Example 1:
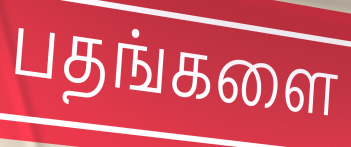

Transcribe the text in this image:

பதங்களை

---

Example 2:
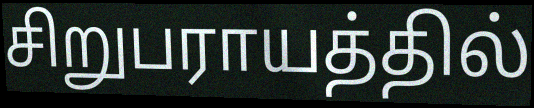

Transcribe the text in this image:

சிறுபராயத்தில்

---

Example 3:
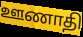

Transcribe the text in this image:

ஊணாதி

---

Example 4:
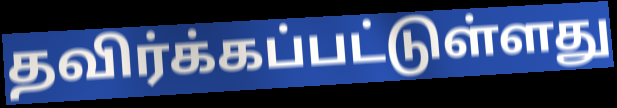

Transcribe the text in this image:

தவிர்க்கப்பட்டுள்ளது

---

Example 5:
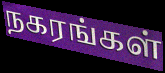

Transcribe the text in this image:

நகரங்கள்